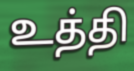
உத்தி